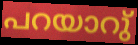
പറയാറു്